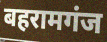
बहरामगंज